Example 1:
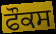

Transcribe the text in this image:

ਫੌਕਸ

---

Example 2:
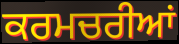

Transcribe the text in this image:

ਕਰਮਚਰੀਆਂ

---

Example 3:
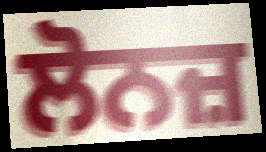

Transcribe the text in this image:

ਲੋਨਜ਼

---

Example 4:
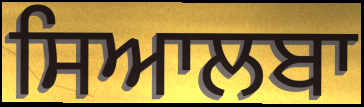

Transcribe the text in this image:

ਸਿਆਲਬਾ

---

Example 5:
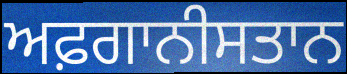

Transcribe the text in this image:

ਅਫ਼ਗਾਨੀਸਤਾਨ